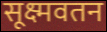
सूक्ष्मवतन